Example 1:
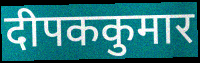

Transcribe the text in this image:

दीपककुमार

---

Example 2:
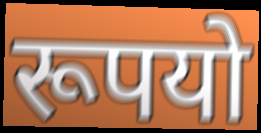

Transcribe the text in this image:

रूपयो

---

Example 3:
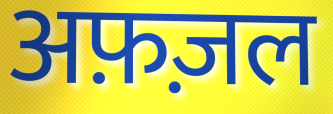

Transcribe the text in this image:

अफ़ज़ल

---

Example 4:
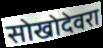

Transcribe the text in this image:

सोखोदेवरा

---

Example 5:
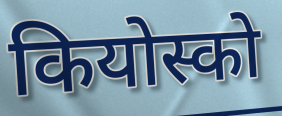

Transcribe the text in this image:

कियोस्को